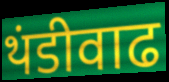
थंडीवाढ